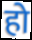
हो